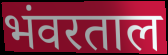
भंवरताल